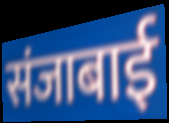
संजाबाई